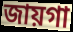
জায়গা